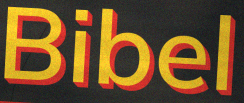
Bibel